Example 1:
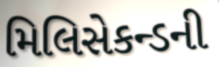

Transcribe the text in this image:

મિલિસેકન્ડની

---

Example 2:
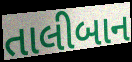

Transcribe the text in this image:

તાલીબાન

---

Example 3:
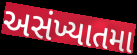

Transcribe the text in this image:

અસંખ્યાતમા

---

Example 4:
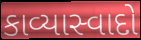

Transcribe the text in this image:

કાવ્યાસ્વાદો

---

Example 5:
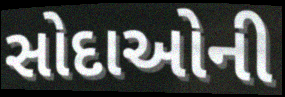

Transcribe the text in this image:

સોદાઓની